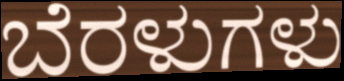
ಬೆರಳುಗಳು